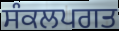
ਸੰਕਲਪਗਤ